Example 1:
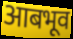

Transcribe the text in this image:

आबभूव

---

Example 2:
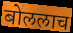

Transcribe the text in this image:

बोललाच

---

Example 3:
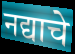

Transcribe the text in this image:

नद्याचे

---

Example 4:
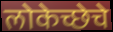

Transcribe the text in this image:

लोकेच्छेचे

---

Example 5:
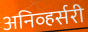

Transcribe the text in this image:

अनिव्हर्सरी